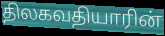
திலகவதியாரின்